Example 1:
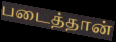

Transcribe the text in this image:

படைத்தான்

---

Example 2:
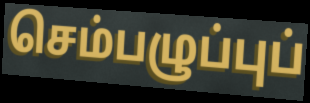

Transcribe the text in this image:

செம்பழுப்புப்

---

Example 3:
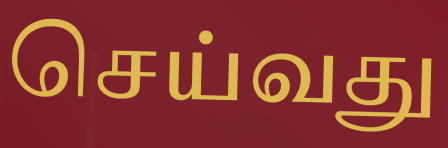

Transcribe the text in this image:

செய்வது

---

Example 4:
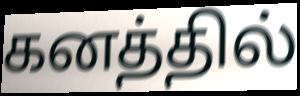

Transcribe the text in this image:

கனத்தில்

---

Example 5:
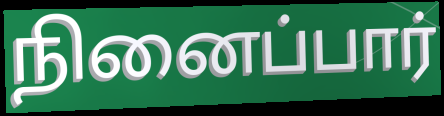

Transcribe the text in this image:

நினைப்பார்